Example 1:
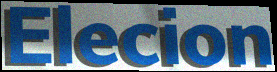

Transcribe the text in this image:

Elecion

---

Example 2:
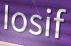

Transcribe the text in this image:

Iosif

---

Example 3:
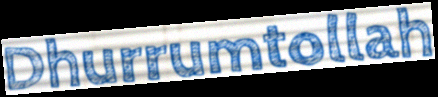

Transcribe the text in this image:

Dhurrumtollah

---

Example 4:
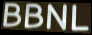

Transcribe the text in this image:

BBNL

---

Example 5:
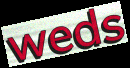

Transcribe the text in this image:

weds